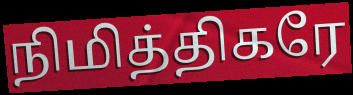
நிமித்திகரே